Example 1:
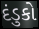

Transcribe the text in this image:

દંડુકો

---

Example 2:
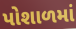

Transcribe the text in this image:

પોશાળમાં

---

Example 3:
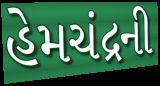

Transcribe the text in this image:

હેમચંદ્રની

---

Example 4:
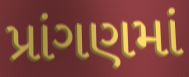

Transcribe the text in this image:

પ્રાંગણમાં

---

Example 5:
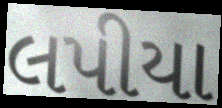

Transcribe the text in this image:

લપીયા